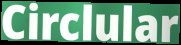
Circlular